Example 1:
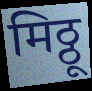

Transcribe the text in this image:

मिठ्ठू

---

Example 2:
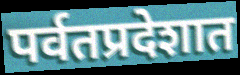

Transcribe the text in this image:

पर्वतप्रदेशात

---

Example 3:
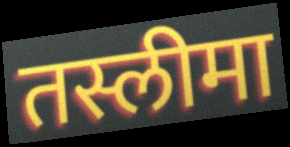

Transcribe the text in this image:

तस्लीमा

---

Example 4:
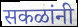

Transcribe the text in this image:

सकळांनी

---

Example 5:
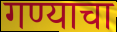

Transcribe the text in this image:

गण्याचा